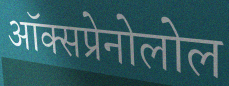
ऑक्सप्रेनोलोल